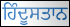
ਹਿੰਦੂਸਤਾਨ